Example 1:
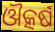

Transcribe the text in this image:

ଔତ୍କର୍ଷ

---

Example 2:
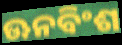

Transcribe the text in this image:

ଊନବିଂଶ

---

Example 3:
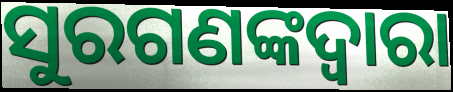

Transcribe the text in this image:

ସୁରଗଣଙ୍କଦ୍ୱାରା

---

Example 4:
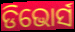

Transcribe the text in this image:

ଡିଭୋର୍ସ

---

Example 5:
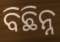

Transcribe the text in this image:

ବିଛିନ୍ନ